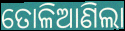
ତୋଳିଆଣିଲା